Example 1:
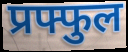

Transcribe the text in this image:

प्रफ्फुल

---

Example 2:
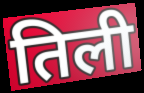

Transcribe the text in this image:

तिली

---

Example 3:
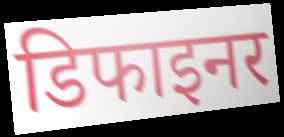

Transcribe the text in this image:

डिफाइनर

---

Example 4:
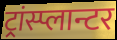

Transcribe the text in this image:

ट्रांस्प्लान्टर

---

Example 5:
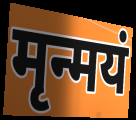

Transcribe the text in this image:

मृन्मयं